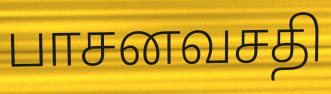
பாசனவசதி